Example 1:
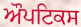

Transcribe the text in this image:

ਔਪਟਿਕਸ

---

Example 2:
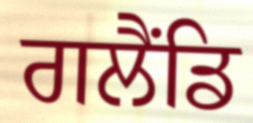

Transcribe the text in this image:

ਗਲੈਂਡਿ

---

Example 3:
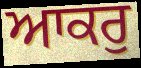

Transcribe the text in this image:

ਆਕਰੁ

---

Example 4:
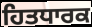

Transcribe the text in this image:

ਹਿਤਧਾਰਕ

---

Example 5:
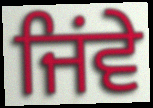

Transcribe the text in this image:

ਜਿਂਵੇ